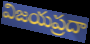
విజయప్రదా